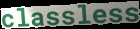
classless